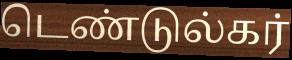
டெண்டுல்கர்